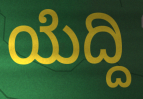
ಯೆದ್ದಿ